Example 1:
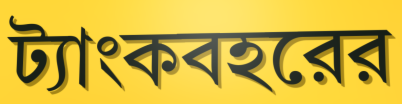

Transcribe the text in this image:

ট্যাংকবহরের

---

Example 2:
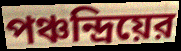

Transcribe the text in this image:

পঞ্চন্দ্রিয়ের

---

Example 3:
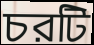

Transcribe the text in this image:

চরটি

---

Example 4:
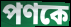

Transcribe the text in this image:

পণকে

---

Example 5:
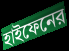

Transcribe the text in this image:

হাইফেনের